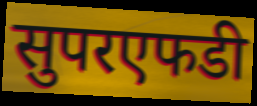
सुपरएफडी